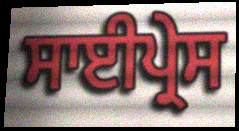
ਸਾਈਪ੍ਰੇਸ